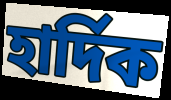
হার্দিক